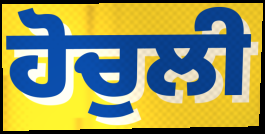
ਹੋਚੁਲੀ